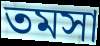
তমসা